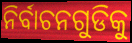
ନିର୍ବାଚନଗୁଡିକୁ